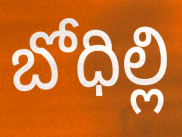
బోధిల్లి